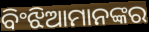
ବିଂଝିଆମାନଙ୍କର